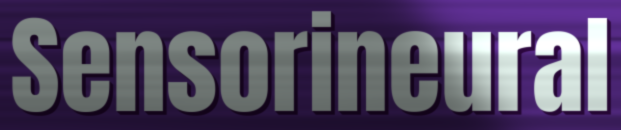
Sensorineural